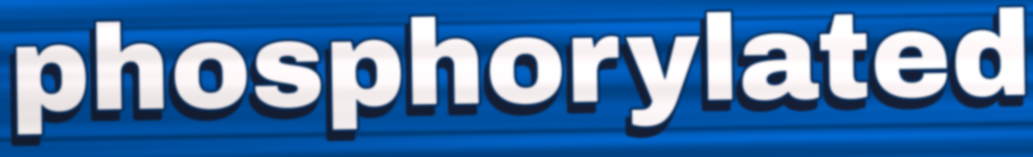
phosphorylated